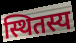
स्थितस्य